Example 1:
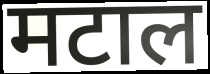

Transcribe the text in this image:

मटाल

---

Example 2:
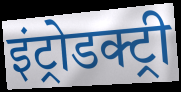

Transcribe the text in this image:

इंट्रोडक्ट्री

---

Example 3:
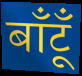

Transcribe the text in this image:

बाँटूँ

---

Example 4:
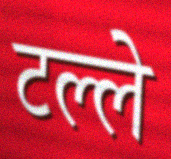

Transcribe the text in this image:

टल्ले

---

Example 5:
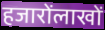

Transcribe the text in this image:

हजारोंलाखों